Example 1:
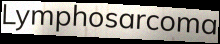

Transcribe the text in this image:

Lymphosarcoma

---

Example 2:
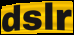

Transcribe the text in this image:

dslr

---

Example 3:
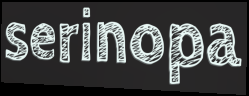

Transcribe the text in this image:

serinopa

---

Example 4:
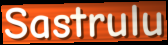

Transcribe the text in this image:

Sastrulu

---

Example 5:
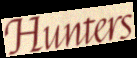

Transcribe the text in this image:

Hunters